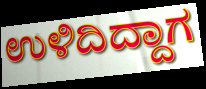
ಉಳಿದಿದ್ದಾಗ